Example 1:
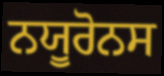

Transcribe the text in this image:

ਨਯੂਰੋਨਸ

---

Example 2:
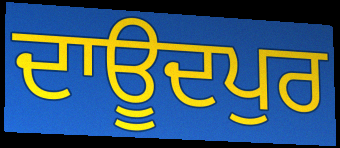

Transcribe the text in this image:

ਦਾਊਦਪੁਰ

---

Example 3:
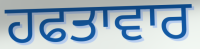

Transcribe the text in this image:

ਹਫਤਾਵਾਰ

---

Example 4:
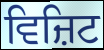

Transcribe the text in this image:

ਵਿਜ਼ਿਟ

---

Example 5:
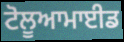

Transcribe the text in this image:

ਟੋਲੂਆਮਾਈਡ